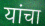
यांचा